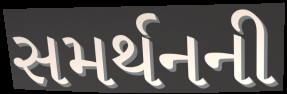
સમર્થનની